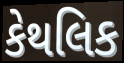
કેથલિક